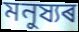
মনুষ্যৰ